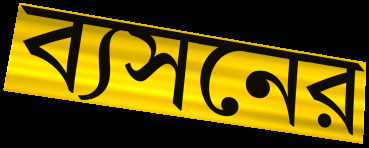
ব্যসনের